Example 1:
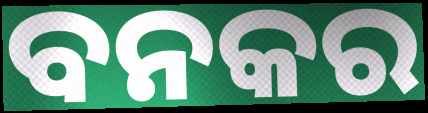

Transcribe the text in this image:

ବନକର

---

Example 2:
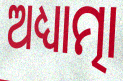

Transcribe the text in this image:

ଅଧ୍ୟାତ୍ମା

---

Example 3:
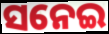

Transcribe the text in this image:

ସନେଇ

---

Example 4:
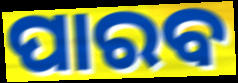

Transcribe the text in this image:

ପାରବ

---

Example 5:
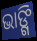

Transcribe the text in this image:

ଭାଙ୍ଗି